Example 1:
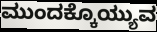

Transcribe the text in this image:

ಮುಂದಕ್ಕೊಯ್ಯುವ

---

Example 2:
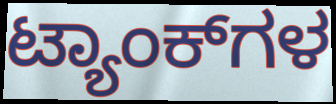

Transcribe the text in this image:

ಟ್ಯಾಂಕ್‌ಗಳ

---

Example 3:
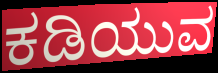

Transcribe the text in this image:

ಕಡಿಯುವ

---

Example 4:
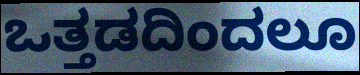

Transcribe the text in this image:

ಒತ್ತಡದಿಂದಲೂ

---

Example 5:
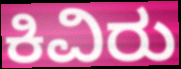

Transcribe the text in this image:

ಕಿವಿರು